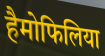
हैमोफिलिया